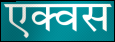
एक्वस